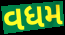
વધમ